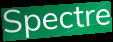
Spectre